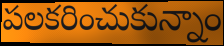
పలకరించుకున్నాం